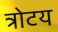
त्रोटय